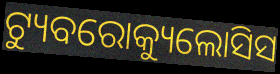
ଟ୍ୟୁବରୋକ୍ୟୁଲୋସିସ